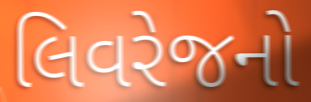
લિવરેજનો